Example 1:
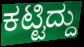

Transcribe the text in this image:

ಕಟ್ಟಿದ್ದು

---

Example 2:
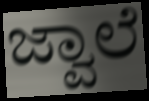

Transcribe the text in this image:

ಜ್ವಾಲೆ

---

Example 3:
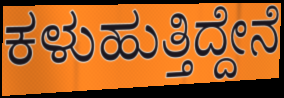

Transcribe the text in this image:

ಕಳುಹುತ್ತಿದ್ದೇನೆ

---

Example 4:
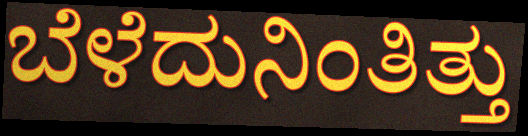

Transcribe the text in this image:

ಬೆಳೆದುನಿಂತಿತ್ತು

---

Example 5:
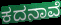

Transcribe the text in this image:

ಕದನಾವೆ